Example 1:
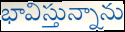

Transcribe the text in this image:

భావిస్తున్నాను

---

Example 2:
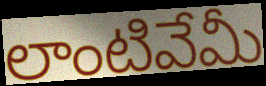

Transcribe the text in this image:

లాంటివేమీ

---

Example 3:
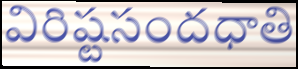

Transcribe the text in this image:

విరిష్టసందధాతి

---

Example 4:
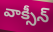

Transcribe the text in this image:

వాక్సీన్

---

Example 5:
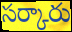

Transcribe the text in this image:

సర్కారు